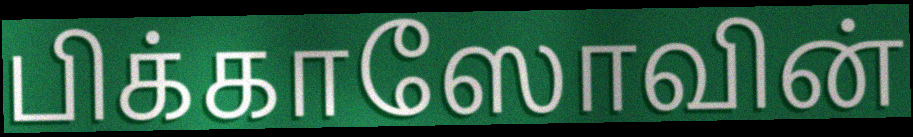
பிக்காஸோவின்